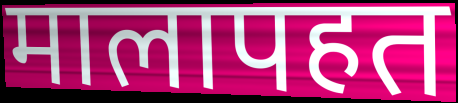
मालापहत